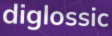
diglossic